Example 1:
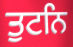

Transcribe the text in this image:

ਤੁਟਨਿ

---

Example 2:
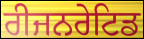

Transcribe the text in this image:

ਰੀਜਨਰੇਟਿਡ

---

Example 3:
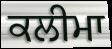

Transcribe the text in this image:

ਕਲੀਮਾ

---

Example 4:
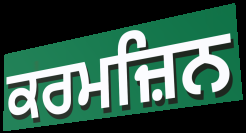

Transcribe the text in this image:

ਕਰਮਜ਼ਿਨ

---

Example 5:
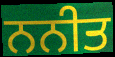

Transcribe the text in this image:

ਨਨੀਤ